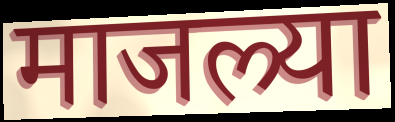
माजल्या